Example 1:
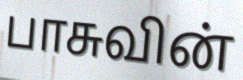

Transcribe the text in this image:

பாசுவின்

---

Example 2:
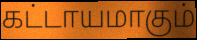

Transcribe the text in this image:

கட்டாயமாகும்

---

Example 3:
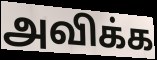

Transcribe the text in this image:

அவிக்க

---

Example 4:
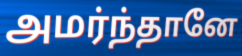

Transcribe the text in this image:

அமர்ந்தானே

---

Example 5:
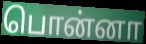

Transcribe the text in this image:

பொன்னா